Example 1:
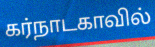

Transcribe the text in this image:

கர்நாடகாவில்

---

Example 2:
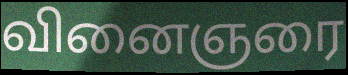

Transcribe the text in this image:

வினைஞரை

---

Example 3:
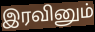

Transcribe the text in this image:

இரவினும்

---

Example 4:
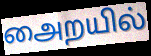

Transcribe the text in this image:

அைறயில்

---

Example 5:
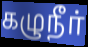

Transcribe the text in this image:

கழுநீர்